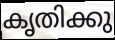
കൃതിക്കു